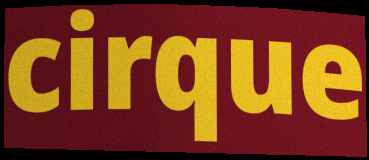
cirque